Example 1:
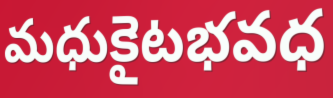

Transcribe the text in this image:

మధుకైటభవధ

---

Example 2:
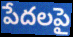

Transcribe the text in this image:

పేదలపై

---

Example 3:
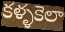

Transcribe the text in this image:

కళ్ళకెలా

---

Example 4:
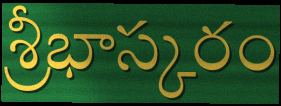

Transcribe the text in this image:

శ్రీభాస్కరం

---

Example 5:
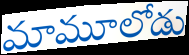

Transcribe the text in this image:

మామూలోడు